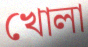
খোলা